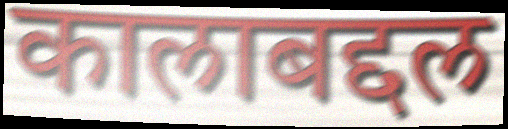
कालाबद्दल